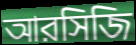
আরসিজি